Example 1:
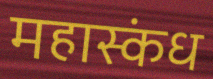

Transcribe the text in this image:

महास्कंध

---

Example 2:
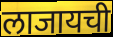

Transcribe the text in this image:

लाजायची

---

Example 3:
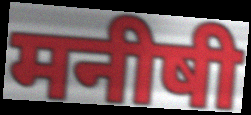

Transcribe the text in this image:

मनीषी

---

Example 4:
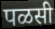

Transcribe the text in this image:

पळसी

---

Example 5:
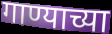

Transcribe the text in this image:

गाण्याच्या